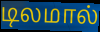
டிலமால்